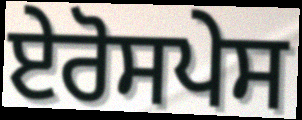
ਏਰੋਸਪੇਸ